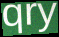
qry